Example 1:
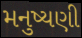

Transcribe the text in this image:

મનુષ્યણી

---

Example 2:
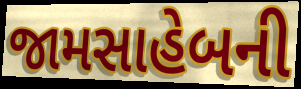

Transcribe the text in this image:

જામસાહેબની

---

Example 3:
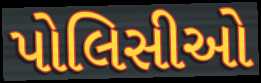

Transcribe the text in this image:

પોલિસીઓ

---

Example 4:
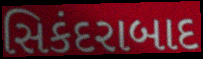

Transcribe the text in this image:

સિકંદરાબાદ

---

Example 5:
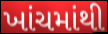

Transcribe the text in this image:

ખાંચમાંથી